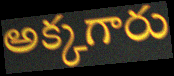
అక్కగారు